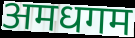
अमधगम